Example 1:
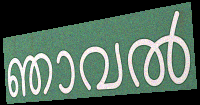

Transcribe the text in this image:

ഞാവൽ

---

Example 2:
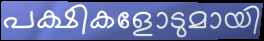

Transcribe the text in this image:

പക്ഷികളോടുമായി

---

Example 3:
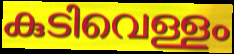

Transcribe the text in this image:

കുടിവെള്ളം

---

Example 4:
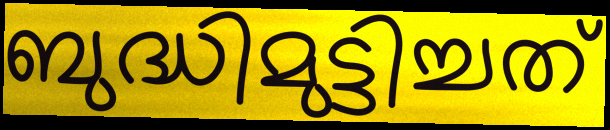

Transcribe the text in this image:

ബുദ്ധിമുട്ടിച്ചത്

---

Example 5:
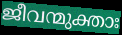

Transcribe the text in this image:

ജീവന്മുക്താഃ